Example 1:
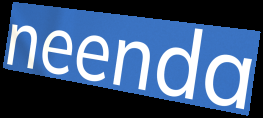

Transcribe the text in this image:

neenda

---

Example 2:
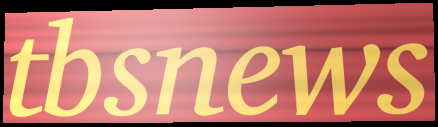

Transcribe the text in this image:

tbsnews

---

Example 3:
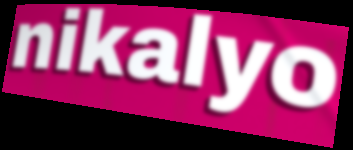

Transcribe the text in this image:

nikalyo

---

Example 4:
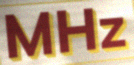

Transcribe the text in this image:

MHz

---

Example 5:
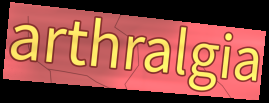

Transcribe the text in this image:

arthralgia